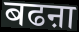
बढऩा